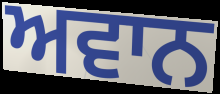
ਅਵਾਨ